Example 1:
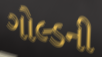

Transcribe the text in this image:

ગોલ્ડની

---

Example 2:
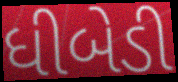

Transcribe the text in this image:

ધીબેડી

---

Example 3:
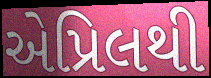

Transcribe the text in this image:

એપ્રિલથી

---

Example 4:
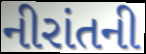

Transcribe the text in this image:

નીરાંતની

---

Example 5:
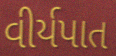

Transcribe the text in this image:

વીર્યપાત